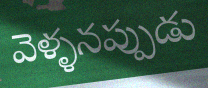
వెళ్ళనప్పుడు